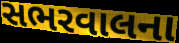
સભરવાલના